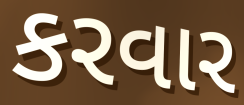
કરવાર